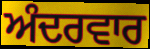
ਅੰਦਰਵਾਰ